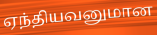
ஏந்தியவனுமான